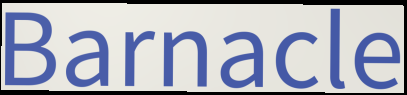
Barnacle